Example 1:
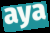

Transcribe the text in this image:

aya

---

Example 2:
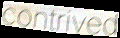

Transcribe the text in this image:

contrived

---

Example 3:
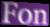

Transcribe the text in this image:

Fon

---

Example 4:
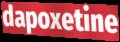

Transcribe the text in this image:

dapoxetine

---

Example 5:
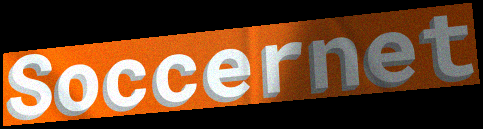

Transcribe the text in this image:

Soccernet